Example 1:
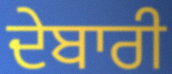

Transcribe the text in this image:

ਦੇਬਾਰੀ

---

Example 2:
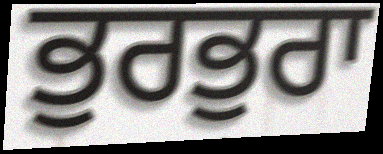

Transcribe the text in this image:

ਭੁਰਭੁਰਾ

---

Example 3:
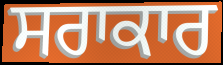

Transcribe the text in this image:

ਸਰਾਕਾਰ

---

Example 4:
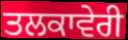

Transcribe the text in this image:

ਤਲਕਾਵੇਰੀ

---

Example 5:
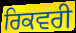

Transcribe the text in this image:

ਰਿਕਵਰੀ